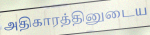
அதிகாரத்தினுடைய